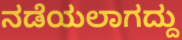
ನಡೆಯಲಾಗದ್ದು